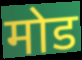
मोड